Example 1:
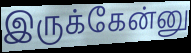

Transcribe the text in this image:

இருக்கேன்னு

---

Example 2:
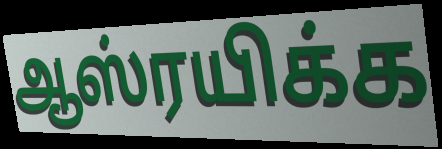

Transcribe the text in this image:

ஆஸ்ரயிக்க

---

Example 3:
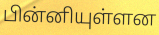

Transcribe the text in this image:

பின்னியுள்ளன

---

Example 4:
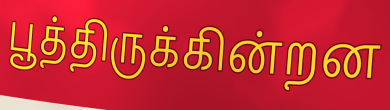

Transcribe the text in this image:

பூத்திருக்கின்றன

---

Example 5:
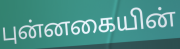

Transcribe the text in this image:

புன்னகையின்